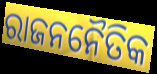
ରାଜନନୈତିକ